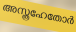
അസ്ത്രഹേതോർ